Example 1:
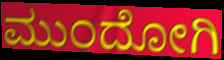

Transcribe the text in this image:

ಮುಂದೋಗಿ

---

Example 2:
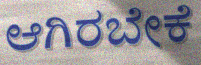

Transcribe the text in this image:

ಆಗಿರಬೇಕೆ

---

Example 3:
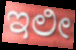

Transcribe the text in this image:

ಇಲೀ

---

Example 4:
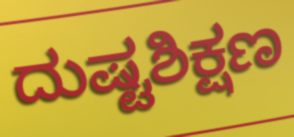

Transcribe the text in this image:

ದುಷ್ಟಶಿಕ್ಷಣ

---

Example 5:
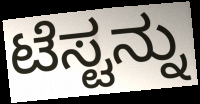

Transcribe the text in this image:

ಟೆಸ್ಟನ್ನು